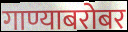
गाण्याबरोबर